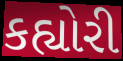
કહ્યોરી